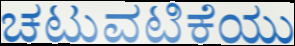
ಚಟುವಟಿಕೆಯು